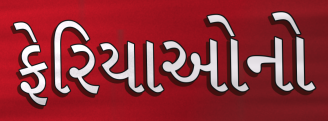
ફેરિયાઓનો